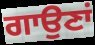
ਗਾਉਣਾਂ